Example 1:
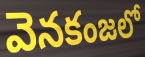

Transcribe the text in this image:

వెనకంజలో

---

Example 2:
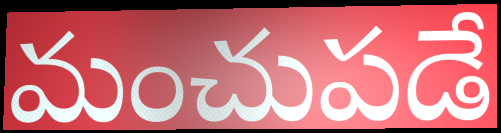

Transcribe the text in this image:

మంచుపడే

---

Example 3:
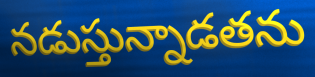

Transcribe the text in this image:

నడుస్తున్నాడతను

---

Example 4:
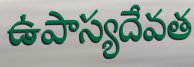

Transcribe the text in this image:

ఉపాస్యదేవత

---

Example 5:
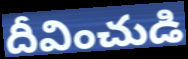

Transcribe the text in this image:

దీవించుడి